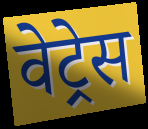
वेट्रेस